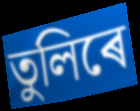
তুলিৰে